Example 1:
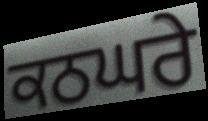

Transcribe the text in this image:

ਕਠਘਰੇ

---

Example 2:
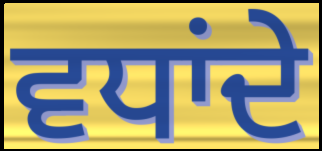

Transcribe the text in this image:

ਵਧਾਂਦੇ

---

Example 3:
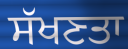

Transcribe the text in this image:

ਸੱਖਣਤਾ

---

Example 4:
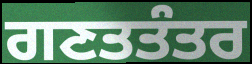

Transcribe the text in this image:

ਗਣਤਤੰਤਰ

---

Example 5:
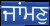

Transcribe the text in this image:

ਜਾਂਮਣੁ